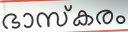
ഭാസ്കരം